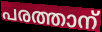
പരത്താന്